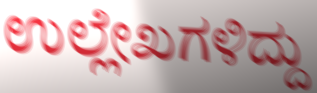
ಉಲ್ಲೇಖಗಳಿದ್ದು